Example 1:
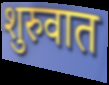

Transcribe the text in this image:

शुरुवात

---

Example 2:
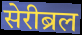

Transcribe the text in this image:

सेरीब्रल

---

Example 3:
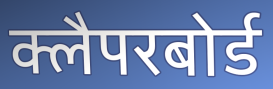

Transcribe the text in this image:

क्लैपरबोर्ड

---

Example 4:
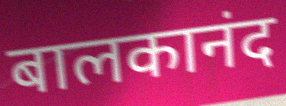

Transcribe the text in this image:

बालकानंद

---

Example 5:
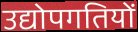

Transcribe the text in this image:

उद्योपगतियों